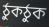
ঠুকঠুক